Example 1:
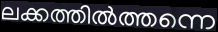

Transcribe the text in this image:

ലക്കത്തിൽത്തന്നെ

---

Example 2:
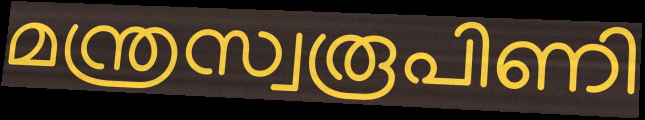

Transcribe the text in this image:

മന്ത്രസ്വരൂപിണി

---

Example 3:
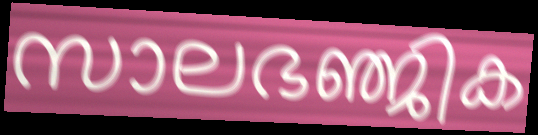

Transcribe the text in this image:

സാലഭഞ്ജിക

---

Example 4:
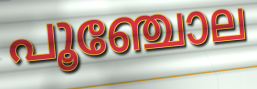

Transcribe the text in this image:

പൂഞ്ചോല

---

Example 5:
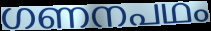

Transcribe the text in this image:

ഗണനപഥം